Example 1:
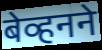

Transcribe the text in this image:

बेव्हनने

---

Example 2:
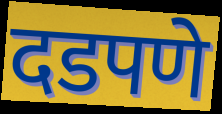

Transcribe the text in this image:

दडपणे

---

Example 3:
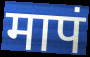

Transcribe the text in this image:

मापं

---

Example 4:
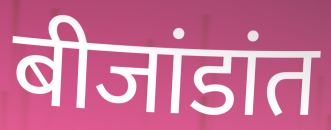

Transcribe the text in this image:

बीजांडांत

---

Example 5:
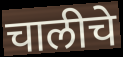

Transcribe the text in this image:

चालीचे